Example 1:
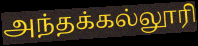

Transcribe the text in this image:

அந்தக்கல்லூரி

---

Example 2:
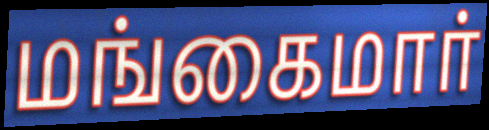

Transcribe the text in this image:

மங்கைமார்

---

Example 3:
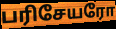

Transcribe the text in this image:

பரிசேயரோ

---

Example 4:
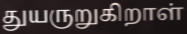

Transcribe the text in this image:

துயருறுகிறாள்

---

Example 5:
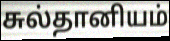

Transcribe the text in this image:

சுல்தானியம்